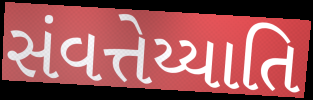
સંવત્તેય્યાતિ